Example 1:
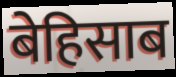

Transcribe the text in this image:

बेहिसाब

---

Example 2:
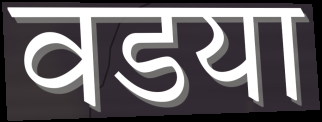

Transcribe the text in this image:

वडया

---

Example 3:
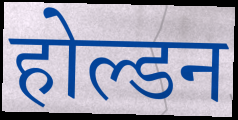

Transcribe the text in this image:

होल्डन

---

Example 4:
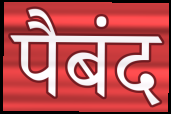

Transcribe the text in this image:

पैबंद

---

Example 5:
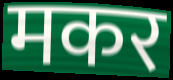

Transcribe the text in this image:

मकर